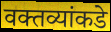
वक्तव्यांकडे